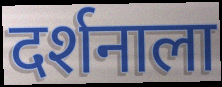
दर्शनाला